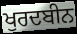
ਖੁਰਦਬੀਨ